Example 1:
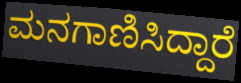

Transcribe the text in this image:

ಮನಗಾಣಿಸಿದ್ದಾರೆ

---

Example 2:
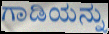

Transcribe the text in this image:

ಗಾಡಿಯನ್ನು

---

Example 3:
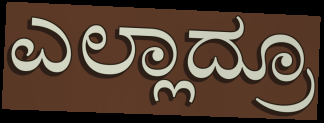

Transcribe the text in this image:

ಎಲ್ಲಾದ್ರೂ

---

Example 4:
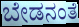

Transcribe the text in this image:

ಬೇಡನಂತೆ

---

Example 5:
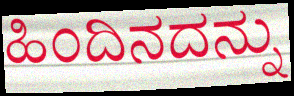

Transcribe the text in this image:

ಹಿಂದಿನದನ್ನು